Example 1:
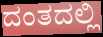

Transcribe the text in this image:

ದಂತದಲ್ಲಿ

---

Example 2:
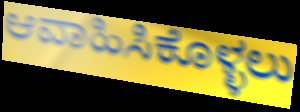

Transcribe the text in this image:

ಆವಾಹಿಸಿಕೊಳ್ಳಲು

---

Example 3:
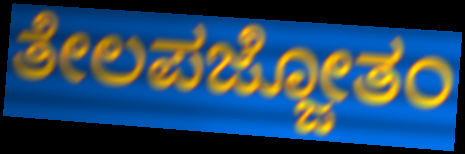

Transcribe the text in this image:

ತೇಲಪಜ್ಜೋತಂ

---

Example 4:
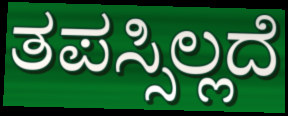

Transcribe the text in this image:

ತಪಸ್ಸಿಲ್ಲದೆ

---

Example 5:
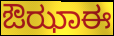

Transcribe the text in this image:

ಔಝಾಈ